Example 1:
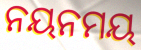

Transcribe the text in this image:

ନୟନମୟ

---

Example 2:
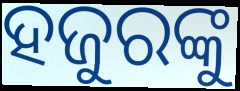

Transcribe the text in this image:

ହଜୁରଙ୍କୁ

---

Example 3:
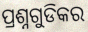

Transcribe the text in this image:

ପ୍ରଶ୍ନଗୁଡିକର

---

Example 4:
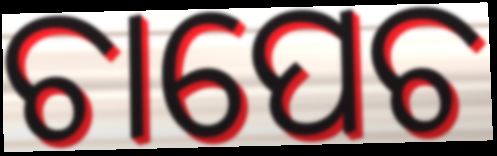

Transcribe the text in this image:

ଚାପେଚ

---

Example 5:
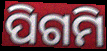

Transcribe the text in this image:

ପିଗମି